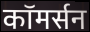
कॉमर्सन